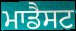
ਮਾਡੈਸਟ